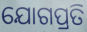
ଯୋଗପ୍ରତି